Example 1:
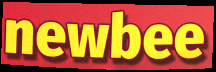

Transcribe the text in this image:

newbee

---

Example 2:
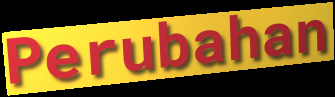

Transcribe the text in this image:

Perubahan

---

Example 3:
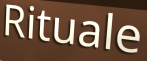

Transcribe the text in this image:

Rituale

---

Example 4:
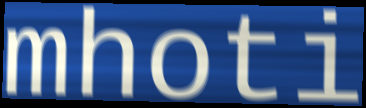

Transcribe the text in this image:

mhoti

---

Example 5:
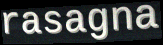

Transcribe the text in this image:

rasagna